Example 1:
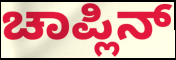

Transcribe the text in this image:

ಚಾಪ್ಲಿನ್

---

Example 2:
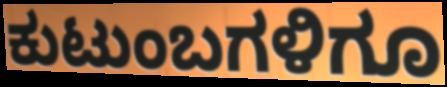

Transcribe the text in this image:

ಕುಟುಂಬಗಳಿಗೂ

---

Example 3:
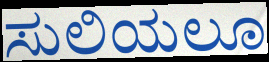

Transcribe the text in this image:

ಸುಲಿಯಲೂ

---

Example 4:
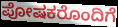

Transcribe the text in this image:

ಪೋಷಕರೊಂದಿಗೆ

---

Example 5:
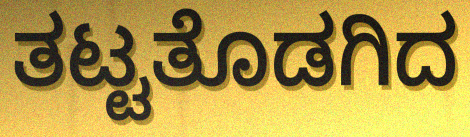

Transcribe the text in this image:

ತಟ್ಟತೊಡಗಿದ